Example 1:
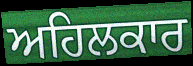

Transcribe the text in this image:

ਅਹਿਲਕਾਰ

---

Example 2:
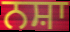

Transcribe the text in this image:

ਨਸ਼ਾ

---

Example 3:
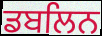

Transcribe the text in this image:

ਡਬਲਿਨ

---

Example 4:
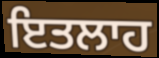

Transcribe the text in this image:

ਇਤਲਾਹ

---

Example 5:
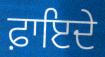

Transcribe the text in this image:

ਫ਼ਾਇਦੇ